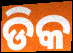
ଡିକ